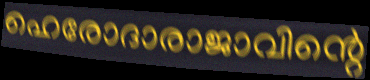
ഹെരോദാരാജാവിന്റെ